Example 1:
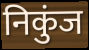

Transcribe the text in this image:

निकुंज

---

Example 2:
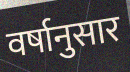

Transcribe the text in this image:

वर्षानुसार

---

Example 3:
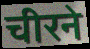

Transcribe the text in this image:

चीरने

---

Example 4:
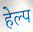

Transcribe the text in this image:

हेल्प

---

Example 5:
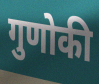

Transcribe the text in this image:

गुणोकी